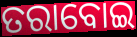
ତରାବୋଇ